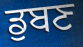
ਡੁਬਣ